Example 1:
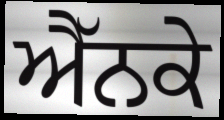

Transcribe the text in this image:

ਐੱਨਕੇ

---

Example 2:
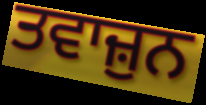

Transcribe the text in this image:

ਤਵਾਜ਼ੁਨ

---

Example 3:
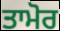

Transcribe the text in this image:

ਤਾਮੋਰ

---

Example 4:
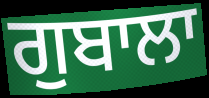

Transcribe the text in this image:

ਗੁਬਾਲਾ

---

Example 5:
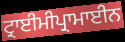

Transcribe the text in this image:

ਟ੍ਰਾਈਮੀਪ੍ਰਾਮਾਈਨ